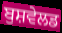
ਬੁਸ਼ਵੇਲਡ